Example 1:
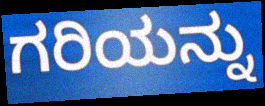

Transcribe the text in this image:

ಗರಿಯನ್ನು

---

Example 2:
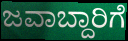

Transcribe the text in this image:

ಜವಾಬ್ದಾರಿಗೆ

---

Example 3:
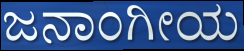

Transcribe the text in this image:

ಜನಾಂಗೀಯ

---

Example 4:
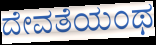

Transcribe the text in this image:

ದೇವತೆಯಂಥ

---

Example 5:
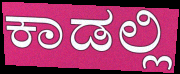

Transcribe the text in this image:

ಕಾಡಲ್ಲಿ